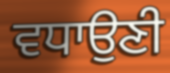
ਵਧਾਉਣੀ